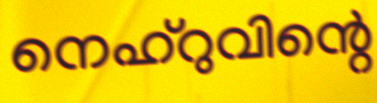
നെഹ്റുവിന്റെ